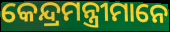
କେନ୍ଦ୍ରମନ୍ତ୍ରୀମାନେ